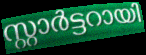
സ്റ്റാർട്ടറായി